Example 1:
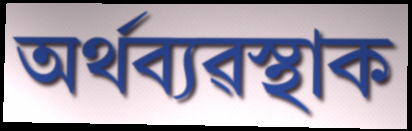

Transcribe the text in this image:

অৰ্থব্যৱস্থাক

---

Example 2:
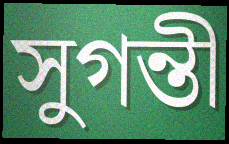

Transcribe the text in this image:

সুগন্তী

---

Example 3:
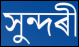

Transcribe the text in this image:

সুন্দৰী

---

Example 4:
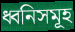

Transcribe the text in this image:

ধ্বনিসমূহ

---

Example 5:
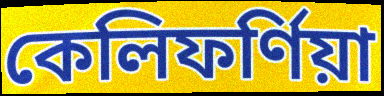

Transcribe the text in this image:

কেলিফৰ্ণিয়া